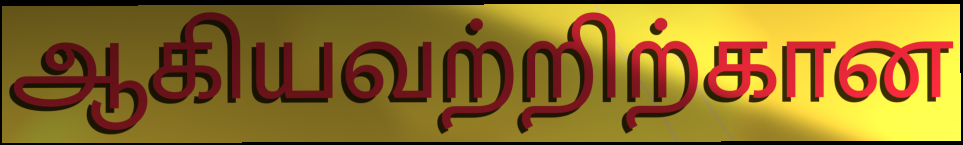
ஆகியவற்றிற்கான